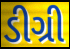
ડીગ્રી